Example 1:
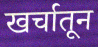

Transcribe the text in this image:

खर्चातून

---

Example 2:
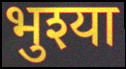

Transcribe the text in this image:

भुश्या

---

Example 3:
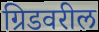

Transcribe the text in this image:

ग्रिडवरील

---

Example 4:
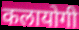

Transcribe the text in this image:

कलायोगी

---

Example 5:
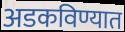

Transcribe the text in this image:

अडकविण्यात